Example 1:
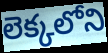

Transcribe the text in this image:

లెక్కలోని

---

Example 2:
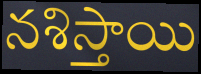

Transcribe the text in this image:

నశిస్తాయి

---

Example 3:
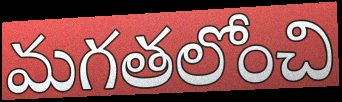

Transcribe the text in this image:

మగతలోంచి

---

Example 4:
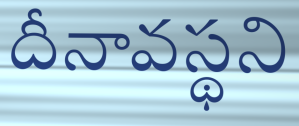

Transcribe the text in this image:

దీనావస్థని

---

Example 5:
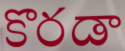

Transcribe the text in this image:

కొరడా